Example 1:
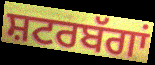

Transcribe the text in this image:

ਸ਼ਟਰਬੱਗਾਂ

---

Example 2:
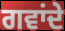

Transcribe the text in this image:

ਗਵਾਂਦੇ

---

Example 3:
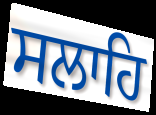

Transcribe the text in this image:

ਸਲਾਹਿ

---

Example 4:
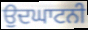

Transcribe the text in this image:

ਉਦਘਾਟਨੀ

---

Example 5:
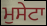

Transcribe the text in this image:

ਮੁਸੇਟਾ